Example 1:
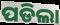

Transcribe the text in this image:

ପଡିଲା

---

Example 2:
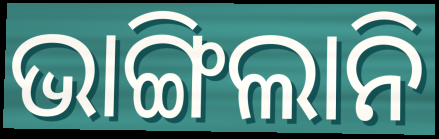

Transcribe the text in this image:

ଭାଙ୍ଗିଲାନି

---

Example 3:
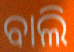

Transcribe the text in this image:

ବାଲି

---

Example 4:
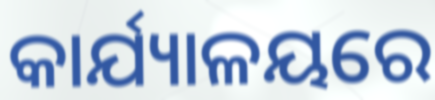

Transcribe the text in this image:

କାର୍ଯ୍ୟାଳୟରେ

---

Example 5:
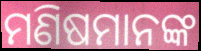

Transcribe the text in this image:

ମଣିଷମାନଙ୍କ